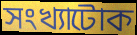
সংখ্যাটোক